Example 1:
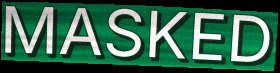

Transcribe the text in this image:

MASKED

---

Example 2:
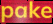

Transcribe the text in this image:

pake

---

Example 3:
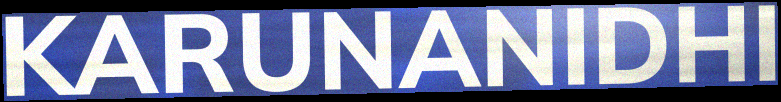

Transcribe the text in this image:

KARUNANIDHI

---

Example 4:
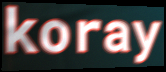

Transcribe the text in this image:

koray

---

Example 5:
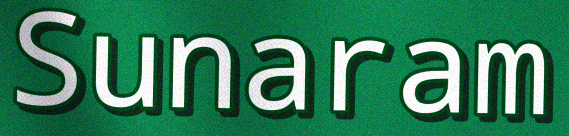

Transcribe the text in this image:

Sunaram